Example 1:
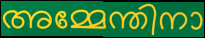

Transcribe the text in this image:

അമ്മേന്തിനാ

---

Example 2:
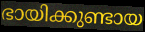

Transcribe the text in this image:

ഭായിക്കുണ്ടായ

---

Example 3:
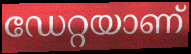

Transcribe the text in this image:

ഡേറ്റയാണ്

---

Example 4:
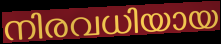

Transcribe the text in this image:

നിരവധിയായ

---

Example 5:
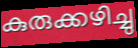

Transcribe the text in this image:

കുരുക്കഴിച്ചു